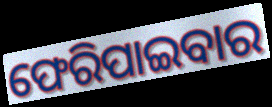
ଫେରିପାଇବାର